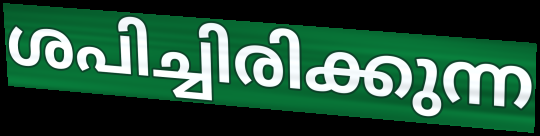
ശപിച്ചിരിക്കുന്ന